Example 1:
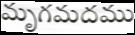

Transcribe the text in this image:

మృగమదము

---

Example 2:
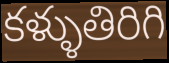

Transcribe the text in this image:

కళ్ళుతిరిగి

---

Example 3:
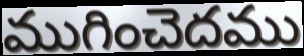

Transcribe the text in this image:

ముగించెదము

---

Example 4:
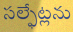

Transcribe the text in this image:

సల్ఫేట్లను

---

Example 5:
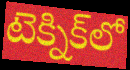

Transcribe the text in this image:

టెక్నిక్‌లో